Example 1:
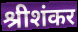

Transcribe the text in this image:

श्रीशंकर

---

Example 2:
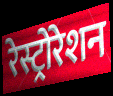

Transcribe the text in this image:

रेस्ट्रोरेशन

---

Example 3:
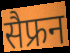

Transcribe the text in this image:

सैफ्रन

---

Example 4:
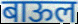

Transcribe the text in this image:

बाऊल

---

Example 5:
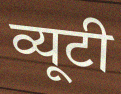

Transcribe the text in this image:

व्यूटी